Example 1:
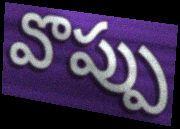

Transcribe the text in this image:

వొప్పు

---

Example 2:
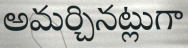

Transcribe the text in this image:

అమర్చినట్లుగా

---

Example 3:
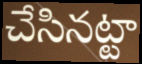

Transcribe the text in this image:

చేసినట్టా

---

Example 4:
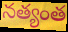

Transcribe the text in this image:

నత్యంత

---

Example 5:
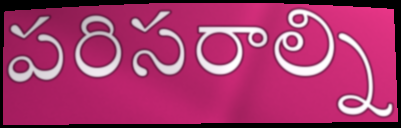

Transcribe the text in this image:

పరిసరాల్ని